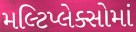
મલ્ટિપ્લેક્સોમાં